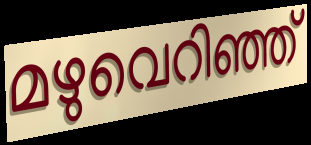
മഴുവെറിഞ്ഞ്